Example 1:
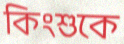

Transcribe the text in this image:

কিংশুকে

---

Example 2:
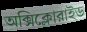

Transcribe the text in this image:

অক্সিক্লোরাইড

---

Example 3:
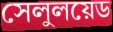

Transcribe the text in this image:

সেলুলয়েড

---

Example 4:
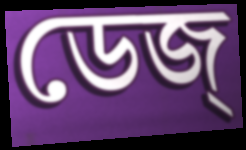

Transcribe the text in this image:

ডেজ্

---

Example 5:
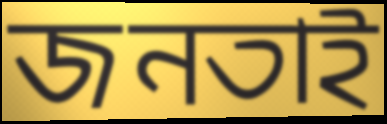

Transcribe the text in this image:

জনতাই